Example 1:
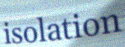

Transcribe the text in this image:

isolation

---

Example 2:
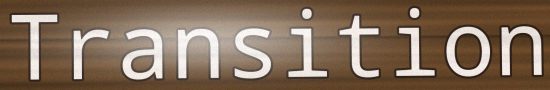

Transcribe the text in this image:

Transition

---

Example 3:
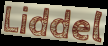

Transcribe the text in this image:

Liddel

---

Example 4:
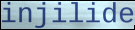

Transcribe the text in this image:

injilide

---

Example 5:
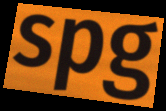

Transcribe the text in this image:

spg